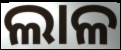
ଲାଳ